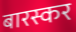
बारस्कर